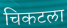
चिकटला